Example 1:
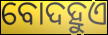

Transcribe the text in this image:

ବୋଦହୁଏ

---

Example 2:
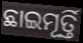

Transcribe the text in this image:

ଛାଇମୂର୍ତ୍ତି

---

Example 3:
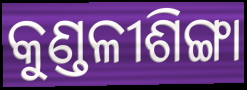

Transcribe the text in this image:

କୁଣ୍ଡଳୀଶିଙ୍ଗା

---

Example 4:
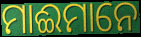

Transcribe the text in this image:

ମାଈମାନେ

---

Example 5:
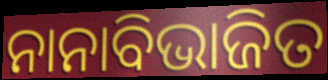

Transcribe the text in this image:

ନାନାବିଭାଜିତ